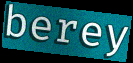
berey